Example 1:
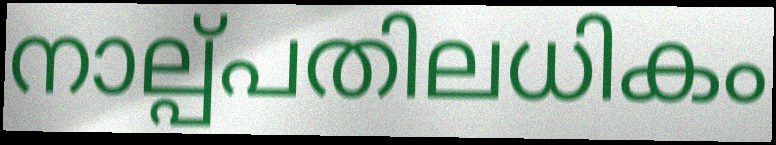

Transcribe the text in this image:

നാല്പ്പതിലധികം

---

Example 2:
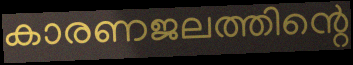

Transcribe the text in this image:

കാരണജലത്തിന്റെ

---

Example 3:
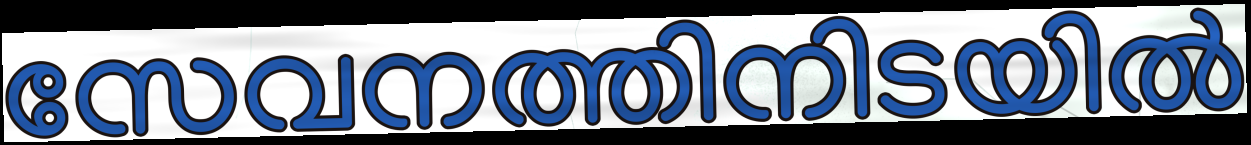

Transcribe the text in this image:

സേവനത്തിനിടയിൽ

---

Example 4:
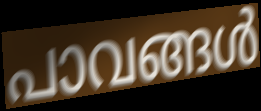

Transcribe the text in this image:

പാവങ്ങൾ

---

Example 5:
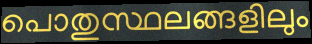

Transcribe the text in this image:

പൊതുസ്ഥലങ്ങളിലും